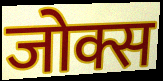
जोक्स